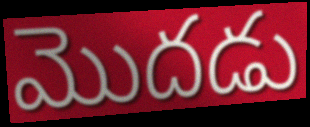
మొదడు